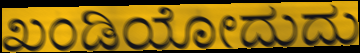
ಖಂಡಿಯೋದುದು